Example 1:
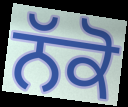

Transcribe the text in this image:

ਨੱਕੋ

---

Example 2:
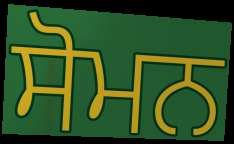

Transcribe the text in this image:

ਸੋਮਨ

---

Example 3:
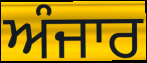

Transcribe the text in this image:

ਅੰਜਾਰ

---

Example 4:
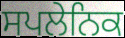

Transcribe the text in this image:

ਸਪਲੇਨਿਕ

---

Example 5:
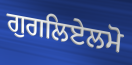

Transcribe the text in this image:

ਗੁਗਲਿਏਲਮੋ